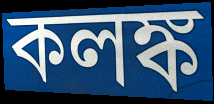
কলঙ্ক